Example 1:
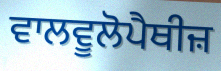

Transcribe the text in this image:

ਵਾਲਵੂਲੋਪੈਥੀਜ਼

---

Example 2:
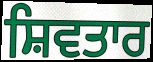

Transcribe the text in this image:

ਸ਼ਿਵਤਾਰ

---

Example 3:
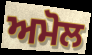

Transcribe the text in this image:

ਅਮੋਲ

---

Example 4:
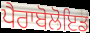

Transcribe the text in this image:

ਪੈਰਾਬੋਲੋਇਡ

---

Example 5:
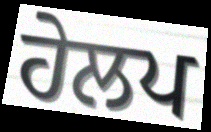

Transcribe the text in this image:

ਹੇਲਪ